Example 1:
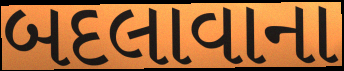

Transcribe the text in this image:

બદલાવાના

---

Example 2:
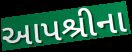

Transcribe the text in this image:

આપશ્રીના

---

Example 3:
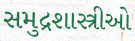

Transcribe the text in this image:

સમુદ્રશાસ્ત્રીઓ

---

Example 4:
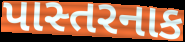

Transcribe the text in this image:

પાસ્તરનાક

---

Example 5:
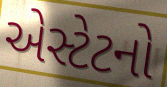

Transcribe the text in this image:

એસ્ટેટનો